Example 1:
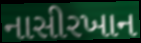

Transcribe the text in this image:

નાસીરખાન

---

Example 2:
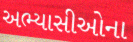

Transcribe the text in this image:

અભ્યાસીઓના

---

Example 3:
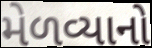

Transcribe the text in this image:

મેળવ્યાનો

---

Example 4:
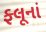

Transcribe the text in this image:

ફ્લૂનાં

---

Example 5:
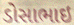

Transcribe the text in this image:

ડોસાભાઇ